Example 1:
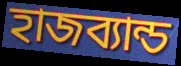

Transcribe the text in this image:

হাজব্যান্ড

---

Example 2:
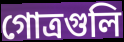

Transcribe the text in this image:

গোত্রগুলি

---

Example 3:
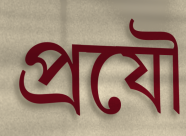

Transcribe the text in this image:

প্রযৌ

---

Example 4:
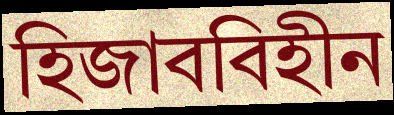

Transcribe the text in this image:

হিজাববিহীন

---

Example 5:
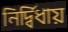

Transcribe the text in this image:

নির্দ্বিধায়